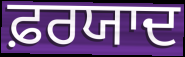
ਫ਼ਰਯਾਦ